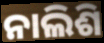
ନାଲିଶି